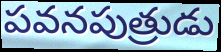
పవనపుత్రుడు